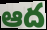
ఆద